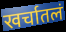
खर्चातलं